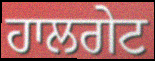
ਹਾਲਗੇਟ